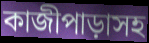
কাজীপাড়াসহ